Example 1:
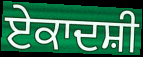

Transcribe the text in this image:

ਏਕਾਦਸ਼ੀ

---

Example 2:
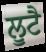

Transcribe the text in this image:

ਲੂਟੈ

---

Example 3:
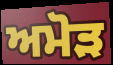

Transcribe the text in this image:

ਅਮੋੜ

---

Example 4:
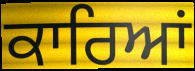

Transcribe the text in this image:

ਕਾਰਿਆਂ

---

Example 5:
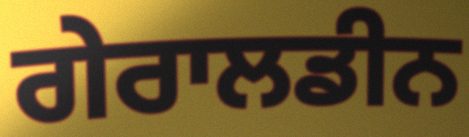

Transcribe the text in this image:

ਗੇਰਾਲਡੀਨ